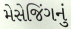
મેસેજિંગનું